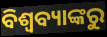
ବିଶ୍ୱବ୍ୟାଙ୍କରୁ